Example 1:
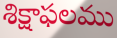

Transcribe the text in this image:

శిక్షాఫలము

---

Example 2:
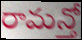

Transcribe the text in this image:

రామన్తో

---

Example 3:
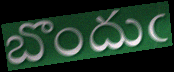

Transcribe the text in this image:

బొందుఁ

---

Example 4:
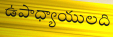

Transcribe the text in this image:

ఉపాధ్యాయులది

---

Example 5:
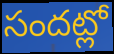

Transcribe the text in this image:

సందట్లో